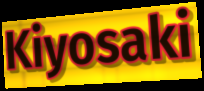
Kiyosaki